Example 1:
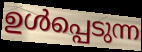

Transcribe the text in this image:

ഉൾപ്പെടുന്ന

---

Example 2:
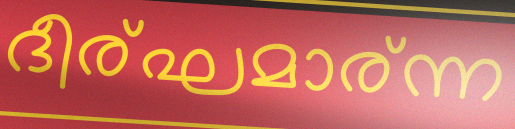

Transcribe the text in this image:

ദീര്ഘമാര്ന്ന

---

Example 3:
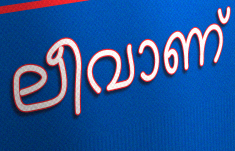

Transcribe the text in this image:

ലീവാണ്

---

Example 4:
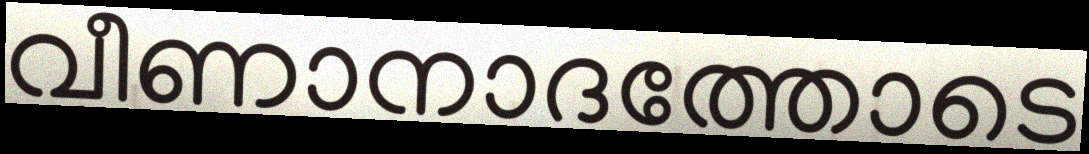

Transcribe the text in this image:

വീണാനാദത്തോടെ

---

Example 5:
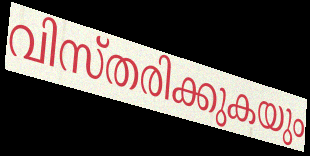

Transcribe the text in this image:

വിസ്തരിക്കുകയും